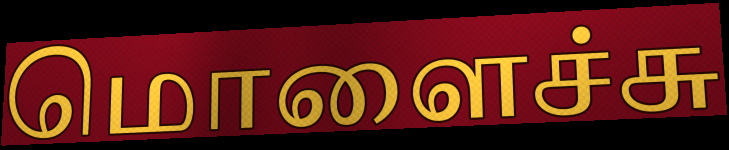
மொளைச்சு